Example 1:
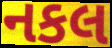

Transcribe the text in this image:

નકલ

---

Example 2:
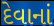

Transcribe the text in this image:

દેવાનાં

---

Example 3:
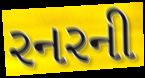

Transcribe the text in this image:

રનરની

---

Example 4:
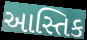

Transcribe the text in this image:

આસ્તિક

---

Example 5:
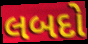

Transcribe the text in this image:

લબદો